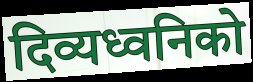
दिव्यध्वनिको